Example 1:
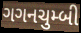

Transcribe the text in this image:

ગગનચુમ્બી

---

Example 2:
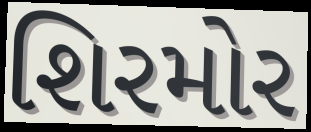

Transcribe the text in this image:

શિરમોર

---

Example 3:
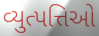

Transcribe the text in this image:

વ્યુત્પત્તિઓ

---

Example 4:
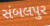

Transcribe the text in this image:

સંબલપુર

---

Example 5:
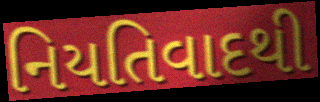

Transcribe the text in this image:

નિયતિવાદથી